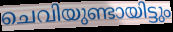
ചെവിയുണ്ടായിട്ടും